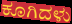
ಕೂಗಿದಳು